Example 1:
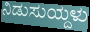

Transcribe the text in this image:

ನಿಡುಸುಯ್ದಳು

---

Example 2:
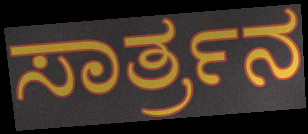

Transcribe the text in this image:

ಸಾರ್ತ್ರನ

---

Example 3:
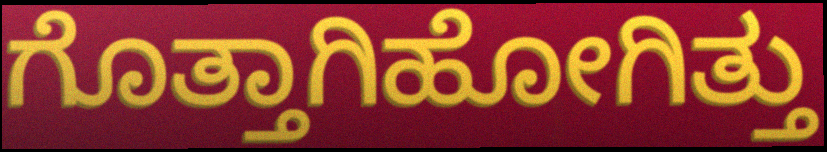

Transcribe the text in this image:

ಗೊತ್ತಾಗಿಹೋಗಿತ್ತು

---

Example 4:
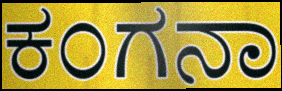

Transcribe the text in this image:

ಕಂಗನಾ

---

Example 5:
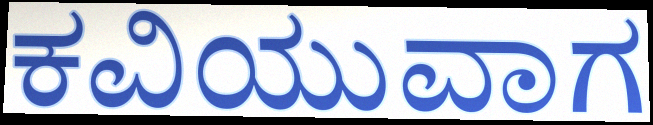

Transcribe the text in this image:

ಕವಿಯುವಾಗ